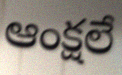
ఆంక్షలే